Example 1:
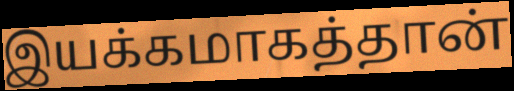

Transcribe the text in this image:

இயக்கமாகத்தான்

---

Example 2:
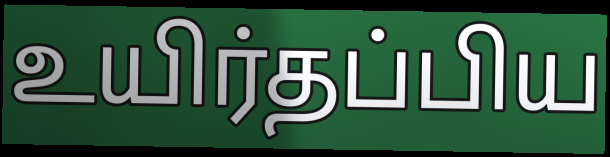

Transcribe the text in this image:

உயிர்தப்பிய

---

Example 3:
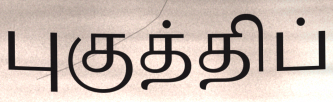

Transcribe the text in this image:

புகுத்திப்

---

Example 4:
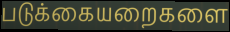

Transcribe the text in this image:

படுக்கையறைகளை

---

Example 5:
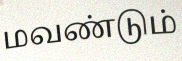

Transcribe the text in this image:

மவண்டும்